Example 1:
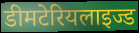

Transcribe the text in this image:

डीमटेरियलाइज्ड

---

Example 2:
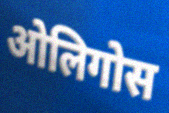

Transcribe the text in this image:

ओलिगोस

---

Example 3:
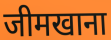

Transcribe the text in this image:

जीमखाना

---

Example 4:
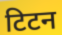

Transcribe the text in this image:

टिटन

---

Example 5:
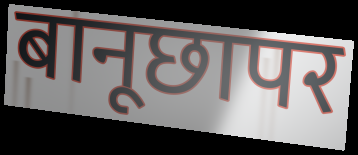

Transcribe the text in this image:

बानूछापर